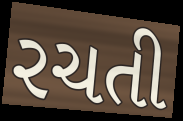
રચતી